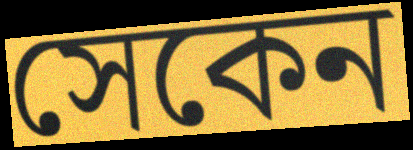
সেকেন